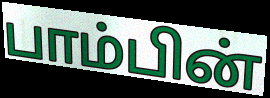
பாம்பின்